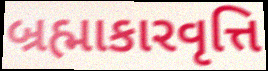
બ્રહ્માકારવૃત્તિ